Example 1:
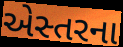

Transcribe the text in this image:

એસ્તરના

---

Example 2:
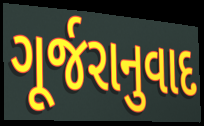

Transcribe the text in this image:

ગૂર્જરાનુવાદ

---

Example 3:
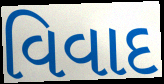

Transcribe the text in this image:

વિવાદ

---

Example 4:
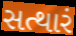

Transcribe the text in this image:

સત્થારં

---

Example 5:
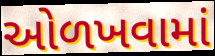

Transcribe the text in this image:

ઓળખવામાં